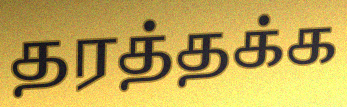
தரத்தக்க